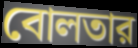
বোলতার